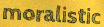
moralistic